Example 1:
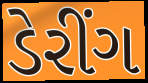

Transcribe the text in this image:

ડેરીંગ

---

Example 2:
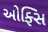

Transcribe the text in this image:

ઓફ્સિ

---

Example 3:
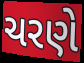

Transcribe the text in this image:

ચરણે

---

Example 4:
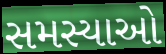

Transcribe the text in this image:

સમસ્યાઓ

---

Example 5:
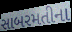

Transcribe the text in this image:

સાબરમતીના